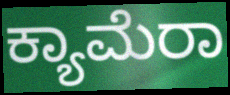
ಕ್ಯಾಮೆರಾ